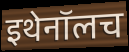
इथेनॉलच